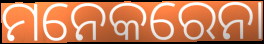
ମନେକରେନା